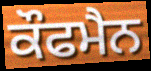
ਕੌਫਮੈਨ